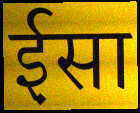
ई़सा